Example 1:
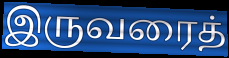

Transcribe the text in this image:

இருவரைத்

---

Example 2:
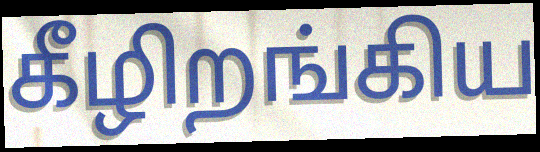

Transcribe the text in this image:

கீழிறங்கிய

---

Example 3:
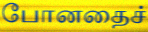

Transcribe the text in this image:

போனதைச்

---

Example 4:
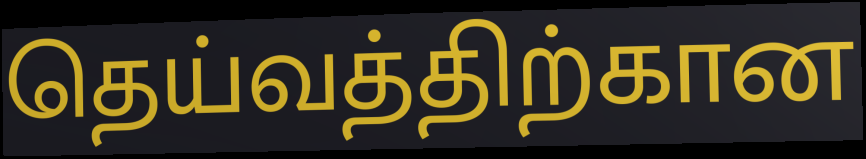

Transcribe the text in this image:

தெய்வத்திற்கான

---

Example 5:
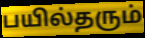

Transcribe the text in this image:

பயில்தரும்